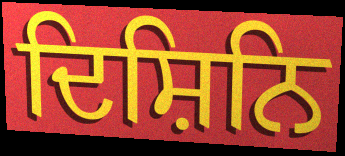
ਦਿਸ਼ਿਨਿ